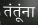
तंतूंना